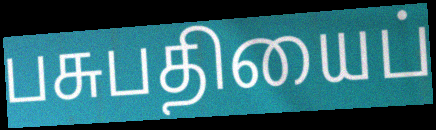
பசுபதியைப்